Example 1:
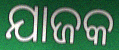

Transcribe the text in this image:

ଯାଜକ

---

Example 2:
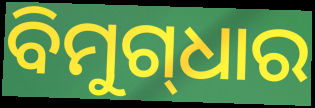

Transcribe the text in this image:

ବିମୁଗ୍‌ଧାର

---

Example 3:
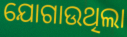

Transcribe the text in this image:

ଯୋଗାଉଥିଲା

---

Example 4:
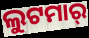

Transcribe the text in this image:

ଲୁଟମାର୍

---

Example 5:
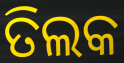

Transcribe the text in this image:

ତିଲକ